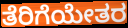
ತೆರಿಗೆಯೇತರ